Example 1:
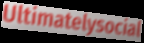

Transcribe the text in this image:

Ultimatelysocial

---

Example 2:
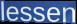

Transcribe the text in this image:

lessen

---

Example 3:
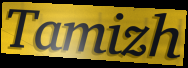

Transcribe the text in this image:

Tamizh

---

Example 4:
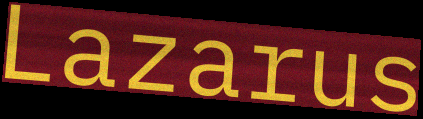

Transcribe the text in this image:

Lazarus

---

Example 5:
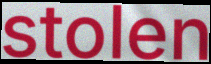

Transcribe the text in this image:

stolen